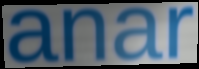
anar